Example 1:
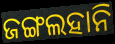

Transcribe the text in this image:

ଜଙ୍ଗଲହାନି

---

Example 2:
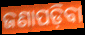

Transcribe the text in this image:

ଜଣାପଡ଼ିବା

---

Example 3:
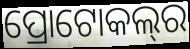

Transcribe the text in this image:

ପ୍ରୋଟୋକଲ୍‌ର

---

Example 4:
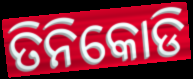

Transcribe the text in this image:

ତିନିକୋଡି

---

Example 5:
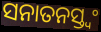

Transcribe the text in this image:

ସନାତନସ୍ତ୍ୱଂ